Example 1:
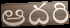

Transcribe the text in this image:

ఆదరి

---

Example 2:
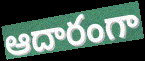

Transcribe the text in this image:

ఆదారంగా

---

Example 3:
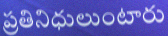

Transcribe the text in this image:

ప్రతినిధులుంటారు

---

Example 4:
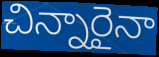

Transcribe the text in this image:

చిన్నారైనా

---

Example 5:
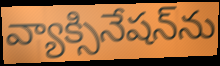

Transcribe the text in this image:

వ్యాక్సినేషన్‌ను